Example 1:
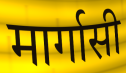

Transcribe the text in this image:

मार्गासी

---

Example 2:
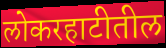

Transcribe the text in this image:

लोकरहाटीतील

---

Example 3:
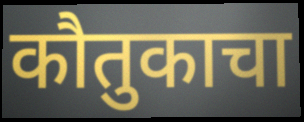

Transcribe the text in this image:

कौतुकाचा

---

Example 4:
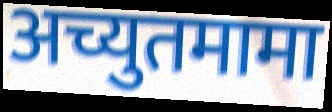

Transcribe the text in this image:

अच्युतमामा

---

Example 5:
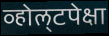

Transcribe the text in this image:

व्होल्टपेक्षा